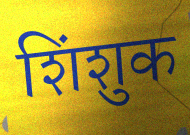
शिंशुक